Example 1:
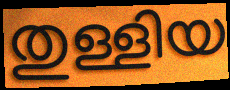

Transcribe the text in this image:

തുള്ളിയ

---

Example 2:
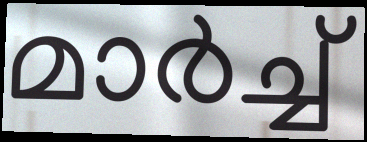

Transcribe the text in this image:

മാർച്ച്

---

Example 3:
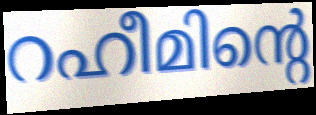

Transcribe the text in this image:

റഹീമിന്റെ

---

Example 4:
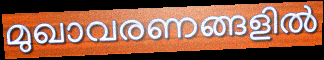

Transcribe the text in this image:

മുഖാവരണങ്ങളിൽ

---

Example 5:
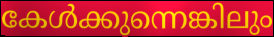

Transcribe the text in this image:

കേൾക്കുന്നെങ്കിലും